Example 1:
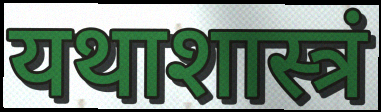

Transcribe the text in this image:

यथाशास्त्रं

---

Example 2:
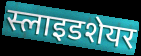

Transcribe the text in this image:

स्लाइडशेयर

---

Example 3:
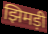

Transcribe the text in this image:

झिमड़ी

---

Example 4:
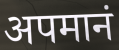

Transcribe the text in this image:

अपमानं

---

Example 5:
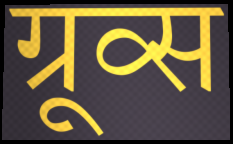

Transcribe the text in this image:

ग्रूव्स